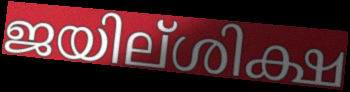
ജയില്ശിക്ഷ